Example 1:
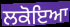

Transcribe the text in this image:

ਲਕੋਇਆ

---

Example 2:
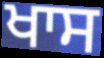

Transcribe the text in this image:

ਖਾਸ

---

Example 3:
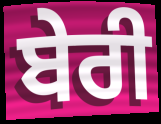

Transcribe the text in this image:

ਬੇਰੀ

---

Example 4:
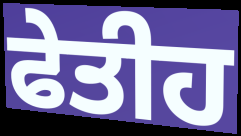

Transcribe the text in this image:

ਫੇਤੀਹ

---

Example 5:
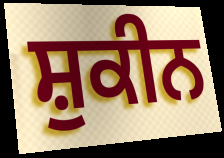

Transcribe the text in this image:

ਸ਼ੁਕੀਨ